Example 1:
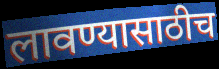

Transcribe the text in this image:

लावण्यासाठीच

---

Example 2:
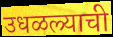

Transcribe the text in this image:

उधळल्याची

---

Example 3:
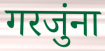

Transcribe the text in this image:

गरजुंना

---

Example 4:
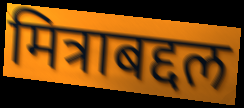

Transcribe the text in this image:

मित्राबद्दल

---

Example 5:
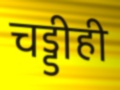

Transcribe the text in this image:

चड्डीही